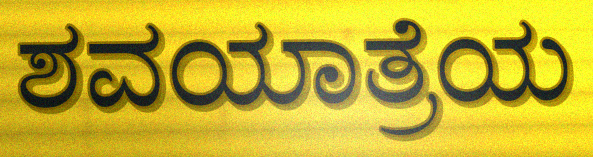
ಶವಯಾತ್ರೆಯ